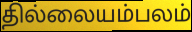
தில்லையம்பலம்